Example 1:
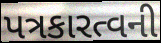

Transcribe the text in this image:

પત્રકારત્વની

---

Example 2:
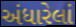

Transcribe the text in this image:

અંધારેલાં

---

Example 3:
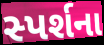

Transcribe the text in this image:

સ્પર્શના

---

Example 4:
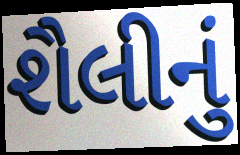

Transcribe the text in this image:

શૈલીનું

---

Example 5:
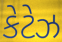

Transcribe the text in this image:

કેટેઝ